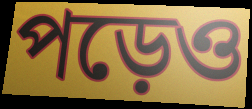
পড়েও